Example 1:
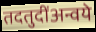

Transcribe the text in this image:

तदतुदींअन्वये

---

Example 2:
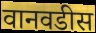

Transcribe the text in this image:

वानवडीस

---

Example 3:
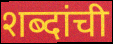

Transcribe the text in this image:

शब्दांची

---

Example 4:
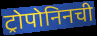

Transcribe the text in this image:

ट्रोपोनिनची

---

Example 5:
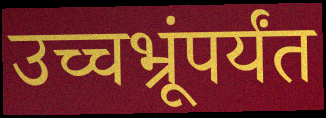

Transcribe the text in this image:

उच्चभ्रूंपर्यंत